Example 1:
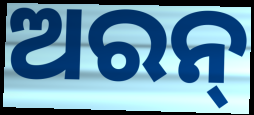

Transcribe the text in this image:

ଅରନ୍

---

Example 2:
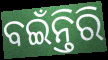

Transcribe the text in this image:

ବଇଁନ୍ତିରି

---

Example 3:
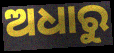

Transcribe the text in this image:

ଅଧାରୁ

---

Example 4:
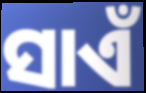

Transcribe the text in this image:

ସାଏଁ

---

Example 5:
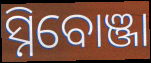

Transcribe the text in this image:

ସ୍ନିବୋଞ୍ଜା